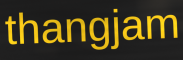
thangjam